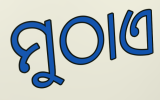
ମୁଠାଏ